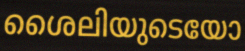
ശൈലിയുടെയോ